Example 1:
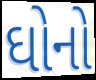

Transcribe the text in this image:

ઘોનો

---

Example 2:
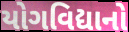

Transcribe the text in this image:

યોગવિદ્યાનો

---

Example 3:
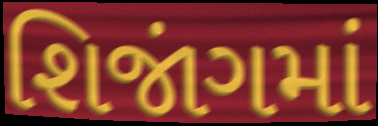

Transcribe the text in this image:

શિજાંગમાં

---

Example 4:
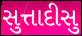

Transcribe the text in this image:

સુત્તાદીસુ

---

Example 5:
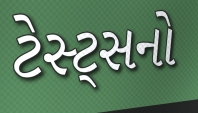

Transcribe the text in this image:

ટેસ્ટ્સનો